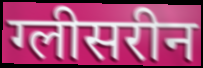
ग्लीसरीन